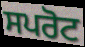
ਸਪਰੋਟ